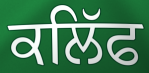
ਕਲਿੱਫ